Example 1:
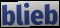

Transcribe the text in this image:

blieb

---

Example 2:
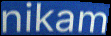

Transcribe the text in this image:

nikam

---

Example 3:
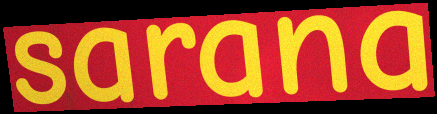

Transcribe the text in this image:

sarana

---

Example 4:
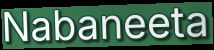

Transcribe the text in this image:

Nabaneeta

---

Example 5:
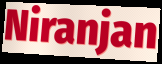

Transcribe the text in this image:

Niranjan